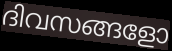
ദിവസങ്ങളോ